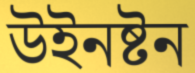
উইনষ্টন